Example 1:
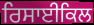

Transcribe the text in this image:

ਰਿਸਾਈਕਿਲ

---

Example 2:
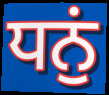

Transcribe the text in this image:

ਧਨੁਂ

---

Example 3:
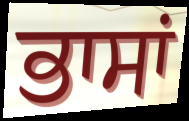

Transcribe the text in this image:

ਭਾਸਾਂ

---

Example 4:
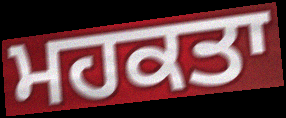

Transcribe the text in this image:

ਮਹਕਤਾ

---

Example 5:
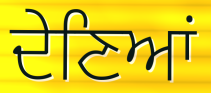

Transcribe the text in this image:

ਦੇਣਿਆਂ